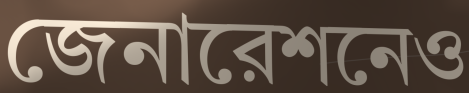
জেনারেশনেও